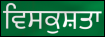
ਵਿਸਕੁਸ਼ਤਾ